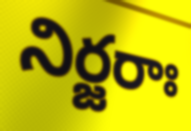
నిర్జరాః